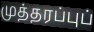
முத்தரப்புப்